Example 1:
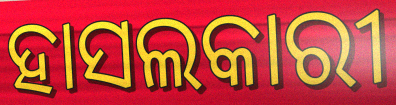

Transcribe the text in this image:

ହାସଲକାରୀ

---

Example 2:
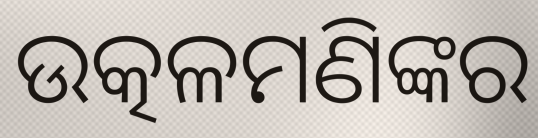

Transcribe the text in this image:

ଉତ୍କଳମଣିଙ୍କର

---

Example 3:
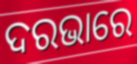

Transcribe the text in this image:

ଦରଭାରେ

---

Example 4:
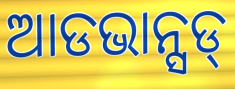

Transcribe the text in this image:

ଆଡଭାନ୍ସଡ୍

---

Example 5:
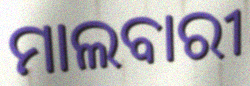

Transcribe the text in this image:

ମାଲବାରୀ